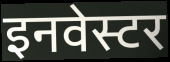
इनवेस्टर